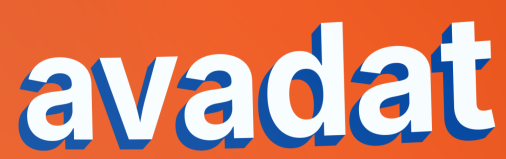
avadat